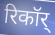
रिकॉर्